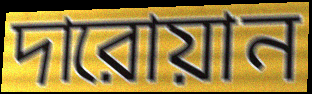
দারোয়ান